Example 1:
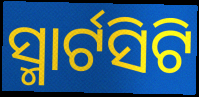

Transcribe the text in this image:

ସ୍ମାର୍ଟସିଟି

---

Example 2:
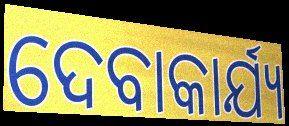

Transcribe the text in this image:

ଦେବାକାର୍ଯ୍ୟ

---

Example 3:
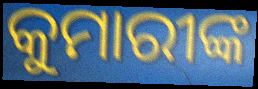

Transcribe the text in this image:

କୁମାରୀଙ୍କ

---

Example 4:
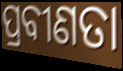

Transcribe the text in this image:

ପ୍ରବୀଣତା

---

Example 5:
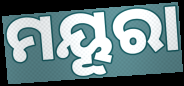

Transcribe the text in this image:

ମୟୂରା